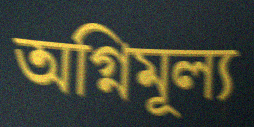
অগ্নিমূল্য